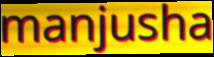
manjusha